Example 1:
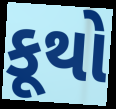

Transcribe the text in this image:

કૂથો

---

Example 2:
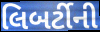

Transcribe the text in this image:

લિબર્ટીની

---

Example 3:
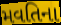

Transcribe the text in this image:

મવતિના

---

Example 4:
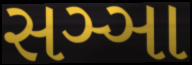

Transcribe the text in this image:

સઞ્ઞા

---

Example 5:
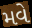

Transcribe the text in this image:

મવે